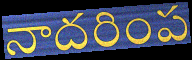
నాదరింప